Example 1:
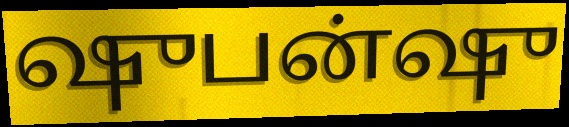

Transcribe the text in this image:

ஷுபன்ஷு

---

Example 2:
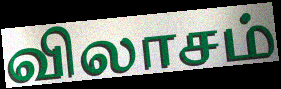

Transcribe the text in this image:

விலாசம்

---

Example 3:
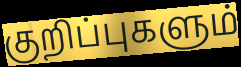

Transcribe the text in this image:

குறிப்புகளும்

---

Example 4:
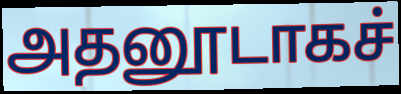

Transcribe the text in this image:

அதனூடாகச்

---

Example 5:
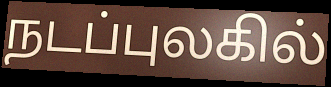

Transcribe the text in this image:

நடப்புலகில்